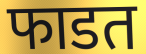
फाडत